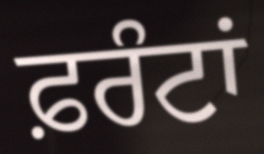
ਫ਼ਰੰਟਾਂ